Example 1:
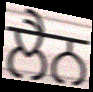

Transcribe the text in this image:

ਲੈਨ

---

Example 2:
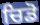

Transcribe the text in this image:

ਚਿਡੋ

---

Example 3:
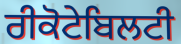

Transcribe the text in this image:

ਰੀਕੋਟੇਬਿਲਟੀ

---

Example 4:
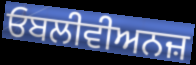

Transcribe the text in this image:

ਓਬਲੀਵੀਅਨਜ਼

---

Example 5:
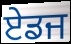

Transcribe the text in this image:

ਏਡਜ